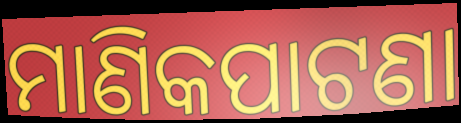
ମାଣିକପାଟଣା